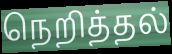
நெறித்தல்